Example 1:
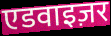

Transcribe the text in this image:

एडवाइज़र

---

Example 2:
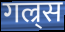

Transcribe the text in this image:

गल्र्स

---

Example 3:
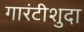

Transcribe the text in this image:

गारंटीशुदा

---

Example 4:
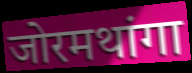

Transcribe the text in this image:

जोरमथांगा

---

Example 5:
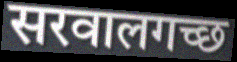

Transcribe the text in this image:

सरवालगच्छ